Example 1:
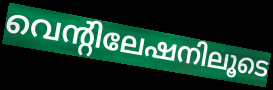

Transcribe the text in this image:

വെന്റിലേഷനിലൂടെ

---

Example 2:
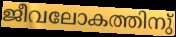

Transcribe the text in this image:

ജീവലോകത്തിനു്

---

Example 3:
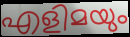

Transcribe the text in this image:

എളിമയും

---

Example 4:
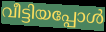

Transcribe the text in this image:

വീട്ടിയപ്പോൾ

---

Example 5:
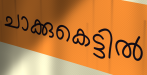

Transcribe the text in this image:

ചാക്കുകെട്ടിൽ